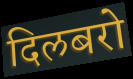
दिलबरो